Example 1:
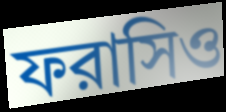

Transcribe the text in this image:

ফরাসিও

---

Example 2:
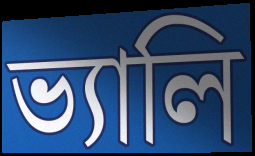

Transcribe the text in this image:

ভ্যালি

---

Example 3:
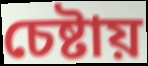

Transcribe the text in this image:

চেষ্টায়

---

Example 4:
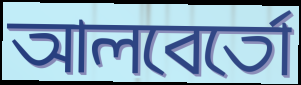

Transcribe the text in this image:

আলবের্তো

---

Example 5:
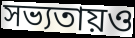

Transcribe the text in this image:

সভ্যতায়ও